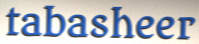
tabasheer